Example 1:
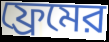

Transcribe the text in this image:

ফ্রেমের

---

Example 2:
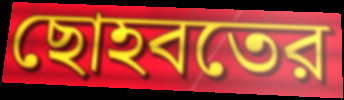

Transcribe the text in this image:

ছোহবতের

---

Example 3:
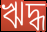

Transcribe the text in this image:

ঋদ্ধ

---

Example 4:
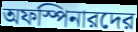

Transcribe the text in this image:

অফস্পিনারদের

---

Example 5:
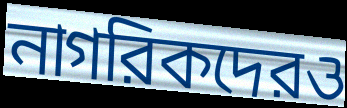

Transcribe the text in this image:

নাগরিকদেরও